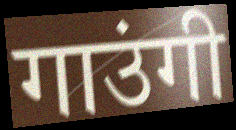
गाउंगी